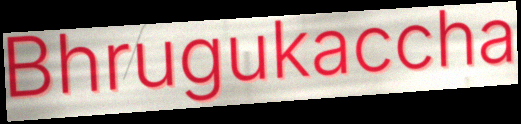
Bhrugukaccha